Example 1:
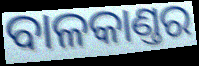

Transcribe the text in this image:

ବାଳକାଣ୍ତର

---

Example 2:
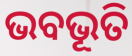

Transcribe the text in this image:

ଭବଭୂତି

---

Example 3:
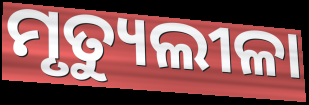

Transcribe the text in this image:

ମୃତ୍ୟୁଲୀଳା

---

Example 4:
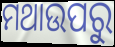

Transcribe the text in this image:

ମଥାଉପରୁ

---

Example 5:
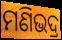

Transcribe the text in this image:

ମଣିଭଦ୍ର